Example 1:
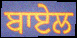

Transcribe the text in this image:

ਬਾਏਲ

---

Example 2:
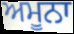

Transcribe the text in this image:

ਅਮੂਨਾ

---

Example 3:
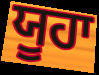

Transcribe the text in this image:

ਯੂਹਾ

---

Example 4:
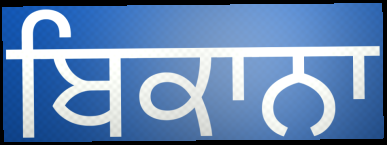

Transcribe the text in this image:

ਬਿਕਾਨਾ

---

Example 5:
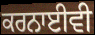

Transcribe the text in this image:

ਕਰਨਾਈਵੀ